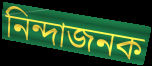
নিন্দাজনক